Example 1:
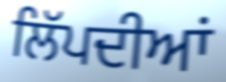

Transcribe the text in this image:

ਲਿੱਪਦੀਆਂ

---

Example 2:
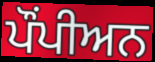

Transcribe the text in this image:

ਪੌਂਪੀਅਨ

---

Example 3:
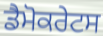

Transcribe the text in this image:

ਡੈਮੋਕਰੇਟਸ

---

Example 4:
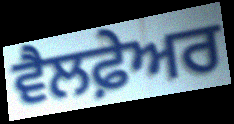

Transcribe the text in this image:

ਵੈਲਫ਼ੇਅਰ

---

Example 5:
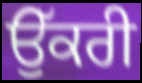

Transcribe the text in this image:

ਉੱਕਰੀ